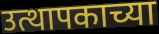
उत्थापकाच्या